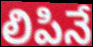
లిపినే